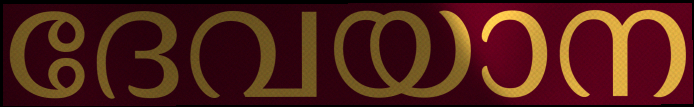
ദേവയാന